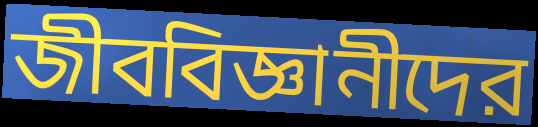
জীববিজ্ঞানীদের